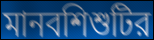
মানবশিশুটির